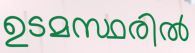
ഉടമസ്ഥരിൽ